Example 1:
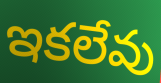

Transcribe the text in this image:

ఇకలేవు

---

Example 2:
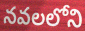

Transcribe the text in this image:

నవలలోని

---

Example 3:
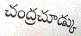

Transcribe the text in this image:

చంద్రచూడ్కు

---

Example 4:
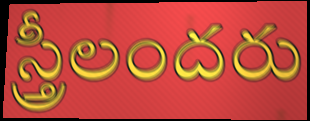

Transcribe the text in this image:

స్త్రీలందరు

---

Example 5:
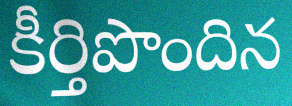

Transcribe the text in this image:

కీర్తిపొందిన